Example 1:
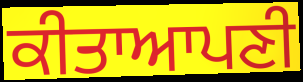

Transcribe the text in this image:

ਕੀਤਾਆਪਣੀ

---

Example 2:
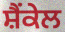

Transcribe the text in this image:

ਸ਼ੈਂਕੇਲ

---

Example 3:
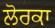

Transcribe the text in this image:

ਲੋਰਕਾ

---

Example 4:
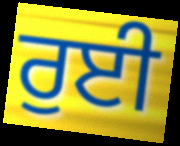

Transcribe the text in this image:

ਰੁਈ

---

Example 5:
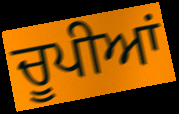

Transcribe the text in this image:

ਚੂਪੀਆਂ